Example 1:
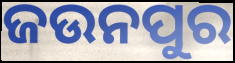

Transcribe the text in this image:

ଜଉନପୁର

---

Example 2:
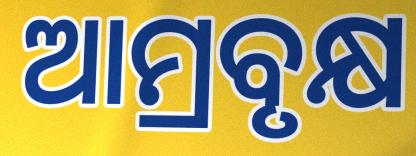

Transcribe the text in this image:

ଆମ୍ରବୃକ୍ଷ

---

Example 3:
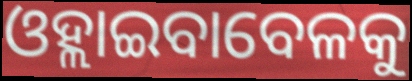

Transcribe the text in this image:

ଓହ୍ଲାଇବାବେଳକୁ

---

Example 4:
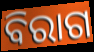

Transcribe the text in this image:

ବିରାଗ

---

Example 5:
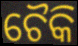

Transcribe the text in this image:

ଚୈକି